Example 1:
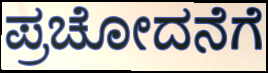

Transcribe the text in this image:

ಪ್ರಚೋದನೆಗೆ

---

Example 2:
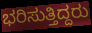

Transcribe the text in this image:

ಭರಿಸುತ್ತಿದ್ದರು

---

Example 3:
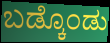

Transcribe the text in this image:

ಬಡ್ಕೊಂಡು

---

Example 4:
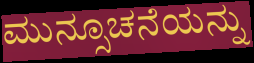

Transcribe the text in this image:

ಮುನ್ಸೂಚನೆಯನ್ನು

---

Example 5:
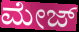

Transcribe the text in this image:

ಮೇಜ್